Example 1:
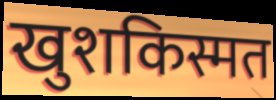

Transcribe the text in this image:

खुशकिस्मत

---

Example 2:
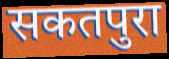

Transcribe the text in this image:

सकतपुरा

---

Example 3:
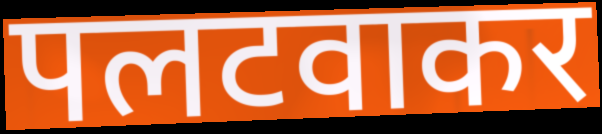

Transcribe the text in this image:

पलटवाकर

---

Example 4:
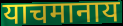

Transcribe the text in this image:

याचमानाय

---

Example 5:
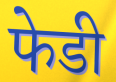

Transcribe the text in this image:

फेडी